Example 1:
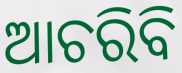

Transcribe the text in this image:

ଆଚରିବି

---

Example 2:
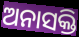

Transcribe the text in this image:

ଅନାସକ୍ତି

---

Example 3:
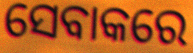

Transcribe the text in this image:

ସେବାକରେ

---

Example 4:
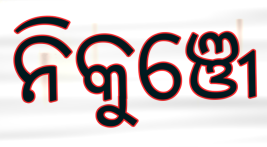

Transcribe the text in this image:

ନିକୁଞ୍ଜେ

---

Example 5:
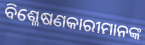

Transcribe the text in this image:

ବିଶ୍ଳେଷଣକାରୀମାନଙ୍କ